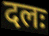
दलः